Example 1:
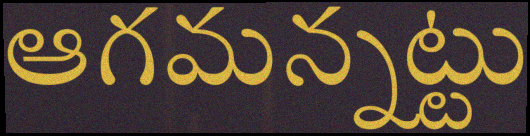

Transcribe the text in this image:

ఆగమన్నట్టు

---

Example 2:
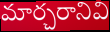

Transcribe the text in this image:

మార్చరానివి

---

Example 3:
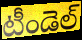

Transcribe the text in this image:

టీండెల్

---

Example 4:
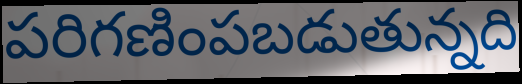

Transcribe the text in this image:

పరిగణింపబడుతున్నది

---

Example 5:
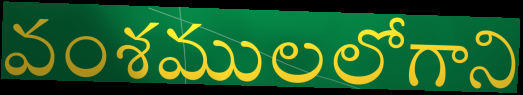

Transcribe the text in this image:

వంశములలోగాని